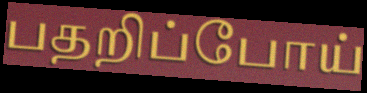
பதறிப்போய்